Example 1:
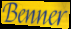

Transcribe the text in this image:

Benner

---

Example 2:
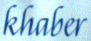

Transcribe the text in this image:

khaber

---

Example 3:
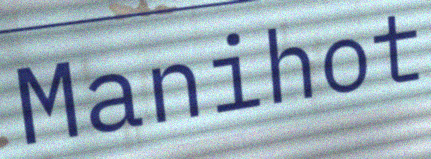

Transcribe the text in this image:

Manihot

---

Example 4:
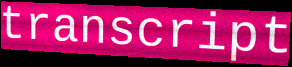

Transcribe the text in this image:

transcript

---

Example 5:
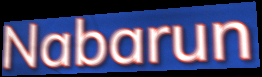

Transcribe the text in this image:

Nabarun